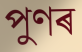
পুণৰ